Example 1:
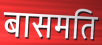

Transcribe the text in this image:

बासमति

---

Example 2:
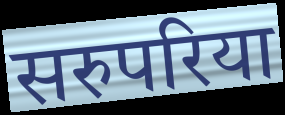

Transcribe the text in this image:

सरुपरिया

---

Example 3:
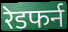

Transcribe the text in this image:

रेडफर्न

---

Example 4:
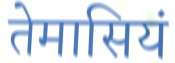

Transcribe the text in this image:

तेमासियं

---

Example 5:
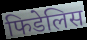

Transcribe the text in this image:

फिडेलिस